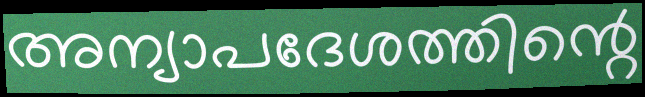
അന്യാപദേശത്തിന്റെ